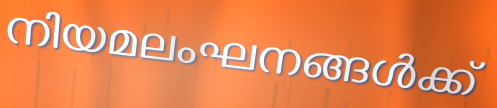
നിയമലംഘനങ്ങൾക്ക്